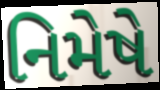
નિમેષે